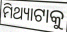
ମିଥ୍ୟାଟାକୁ